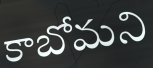
కాబోమని